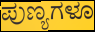
ಪುಣ್ಯಗಳೂ